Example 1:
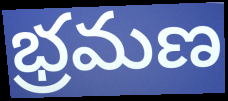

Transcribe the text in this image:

భ్రమణ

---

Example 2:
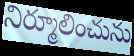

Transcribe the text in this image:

నిర్మూలించును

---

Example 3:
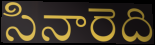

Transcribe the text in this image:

సినారెది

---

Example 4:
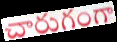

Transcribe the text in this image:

చారుగంగా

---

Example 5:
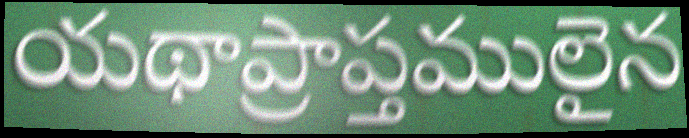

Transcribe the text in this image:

యథాప్రాప్తములైన